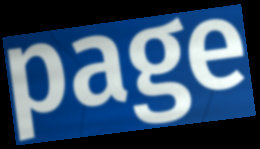
page